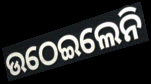
ଉଠେଇଲେନି